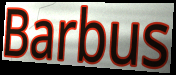
Barbus